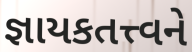
જ્ઞાયકતત્ત્વને